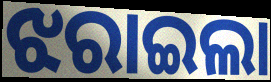
ଝରାଇଲା